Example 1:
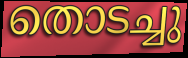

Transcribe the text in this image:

തൊടച്ചു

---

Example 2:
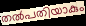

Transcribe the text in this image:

തൽപതിയാകും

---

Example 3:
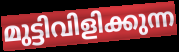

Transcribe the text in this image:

മുട്ടിവിളിക്കുന്ന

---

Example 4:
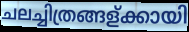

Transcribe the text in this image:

ചലച്ചിത്രങ്ങള്ക്കായി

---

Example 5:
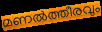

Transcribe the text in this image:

മണൽത്തീരവും